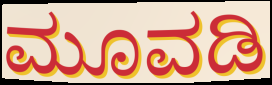
ಮೂವಡಿ